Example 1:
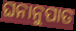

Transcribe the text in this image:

ଘନାନୁପାତ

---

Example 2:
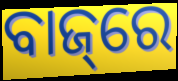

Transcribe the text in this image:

ବାଜ୍‌ରେ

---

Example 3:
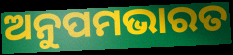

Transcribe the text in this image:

ଅନୁପମଭାରତ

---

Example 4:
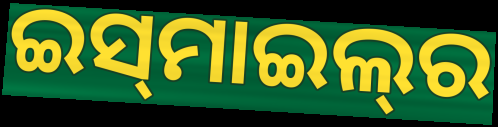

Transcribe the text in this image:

ଇସ୍‌ମାଇଲ୍‌ର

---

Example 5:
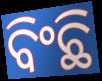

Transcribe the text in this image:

ବିଂଛି